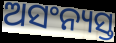
ଅସଂନ୍ୟସ୍ତ